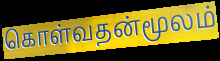
கொள்வதன்மூலம்